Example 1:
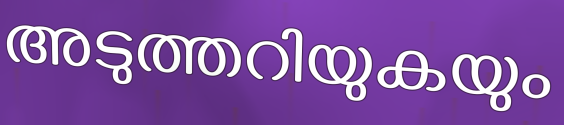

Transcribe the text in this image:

അടുത്തറിയുകയും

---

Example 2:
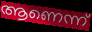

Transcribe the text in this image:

ആണെന്ന്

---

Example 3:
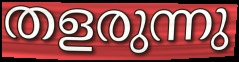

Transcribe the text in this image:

തളരുന്നു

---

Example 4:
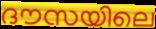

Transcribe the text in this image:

ദൗസയിലെ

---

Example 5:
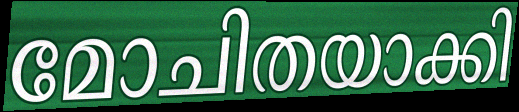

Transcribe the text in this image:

മോചിതയാക്കി